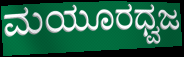
ಮಯೂರಧ್ವಜ